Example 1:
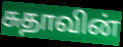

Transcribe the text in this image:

சுதாவின்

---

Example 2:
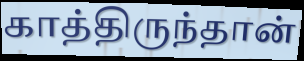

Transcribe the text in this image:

காத்திருந்தான்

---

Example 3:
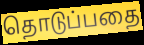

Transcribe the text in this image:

தொடுப்பதை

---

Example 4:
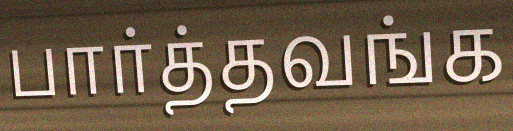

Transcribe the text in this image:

பார்த்தவங்க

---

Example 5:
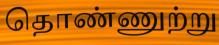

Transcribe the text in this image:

தொண்ணுற்று